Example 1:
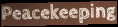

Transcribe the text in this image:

Peacekeeping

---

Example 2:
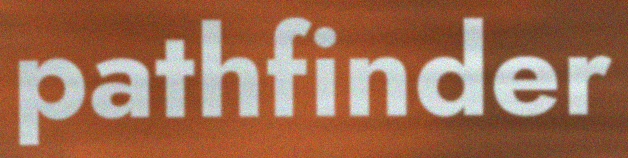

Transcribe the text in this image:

pathfinder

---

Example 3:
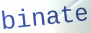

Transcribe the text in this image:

binate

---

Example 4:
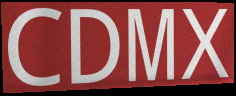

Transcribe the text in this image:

CDMX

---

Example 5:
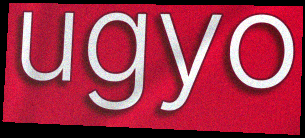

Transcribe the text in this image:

ugyo